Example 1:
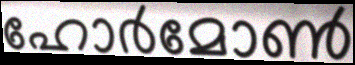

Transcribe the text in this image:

ഹോർമോൺ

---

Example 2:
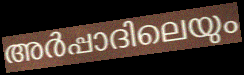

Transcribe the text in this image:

അർപ്പാദിലെയും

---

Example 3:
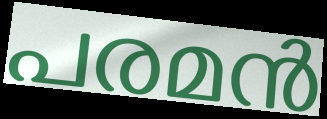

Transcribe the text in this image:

പരമൻ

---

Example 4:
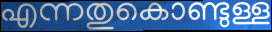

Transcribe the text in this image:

എന്നതുകൊണ്ടുള്ള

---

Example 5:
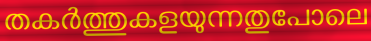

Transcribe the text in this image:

തകർത്തുകളയുന്നതുപോലെ